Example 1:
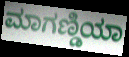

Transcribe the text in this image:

ಮಾಗಣ್ಡಿಯಾ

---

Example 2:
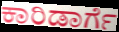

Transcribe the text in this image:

ಕಾರಿಡಾರ್ಗೆ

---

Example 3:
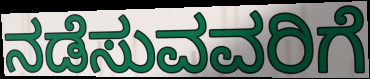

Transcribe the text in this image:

ನಡೆಸುವವರಿಗೆ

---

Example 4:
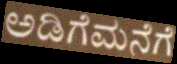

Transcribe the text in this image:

ಅಡಿಗೆಮನೆಗೆ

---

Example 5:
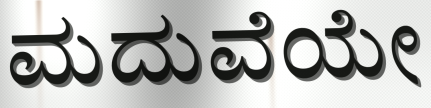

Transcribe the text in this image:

ಮದುವೆಯೇ